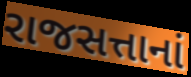
રાજસત્તાનાં